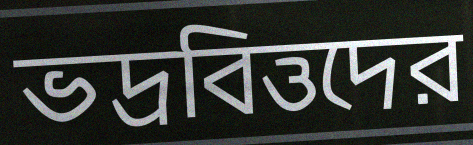
ভদ্রবিত্তদের